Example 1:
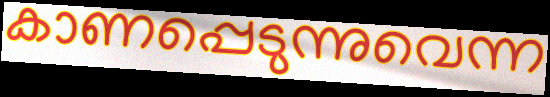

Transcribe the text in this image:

കാണപ്പെടുന്നുവെന്ന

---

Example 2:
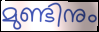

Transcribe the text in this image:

മുണ്ടിനും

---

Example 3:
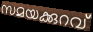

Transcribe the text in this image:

സമയക്കുറവ്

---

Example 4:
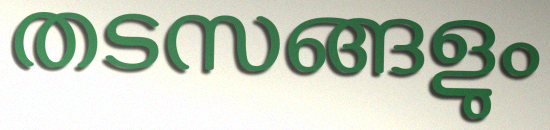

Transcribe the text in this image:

തടസങ്ങളും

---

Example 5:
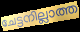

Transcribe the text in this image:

ചേട്ടനില്ലാത്ത